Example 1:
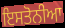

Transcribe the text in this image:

ਇਸਤੋਨੀਆ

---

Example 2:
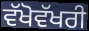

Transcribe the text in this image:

ਵੱਖੋਵੱਖਰੀ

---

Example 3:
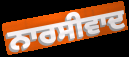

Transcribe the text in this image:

ਨਾਰਸੀਵਾਦ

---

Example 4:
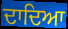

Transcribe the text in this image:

ਦਾਦਿਆ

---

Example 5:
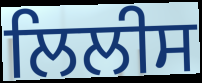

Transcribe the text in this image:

ਲਿਲੀਸ